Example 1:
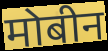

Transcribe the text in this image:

मोबीन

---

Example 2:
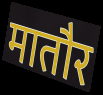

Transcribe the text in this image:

मातौर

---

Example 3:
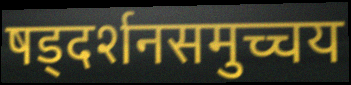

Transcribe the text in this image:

षड्दर्शनसमुच्चय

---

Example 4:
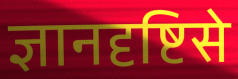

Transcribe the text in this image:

ज्ञानदृष्टिसे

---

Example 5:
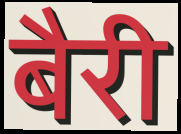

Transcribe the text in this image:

बैरी